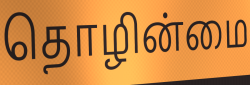
தொழின்மை